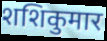
शशिकुमार